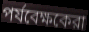
পর্যবেক্ষকেরা